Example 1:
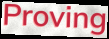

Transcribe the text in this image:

Proving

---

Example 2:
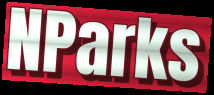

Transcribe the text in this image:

NParks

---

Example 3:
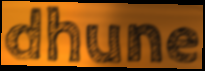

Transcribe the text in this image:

dhune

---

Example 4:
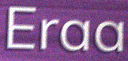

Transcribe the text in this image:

Eraa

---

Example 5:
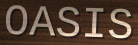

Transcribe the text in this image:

OASIS